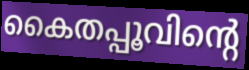
കൈതപ്പൂവിന്റെ